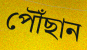
পৌঁছান